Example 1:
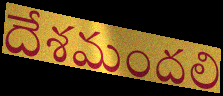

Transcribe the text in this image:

దేశమందలి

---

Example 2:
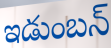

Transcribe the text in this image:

ఇడుంబన్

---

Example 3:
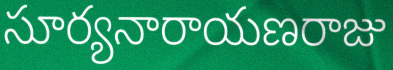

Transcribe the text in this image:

సూర్యనారాయణరాజు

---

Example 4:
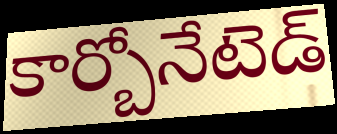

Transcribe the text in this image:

కార్బోనేటెడ్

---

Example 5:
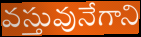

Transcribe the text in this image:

వస్తువునేగాని